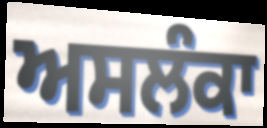
ਅਸਲੰਕਾ